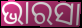
ଭାରସା